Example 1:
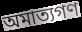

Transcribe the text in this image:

অমাত্যগণ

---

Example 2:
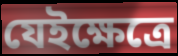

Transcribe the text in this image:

যেইক্ষেত্রে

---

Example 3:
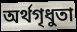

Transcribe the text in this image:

অর্থগৃধুতা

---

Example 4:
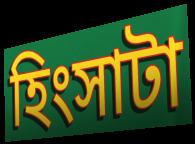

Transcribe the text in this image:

হিংসাটা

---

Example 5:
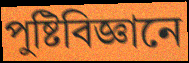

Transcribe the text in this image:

পুষ্টিবিজ্ঞানে